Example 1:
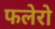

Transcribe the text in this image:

फलेरो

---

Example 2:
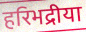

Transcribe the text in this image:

हरिभद्रीया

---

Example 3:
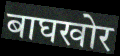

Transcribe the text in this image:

बाघखोर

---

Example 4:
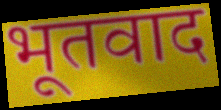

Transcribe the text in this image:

भूतवाद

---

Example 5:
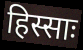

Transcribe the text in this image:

हिस्साः